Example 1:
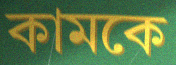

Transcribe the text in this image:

কামকে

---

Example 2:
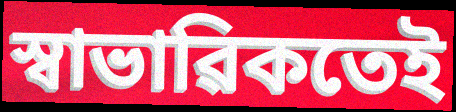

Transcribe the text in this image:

স্বাভাৱিকতেই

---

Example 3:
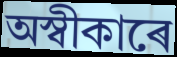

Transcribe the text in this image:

অস্বীকাৰে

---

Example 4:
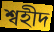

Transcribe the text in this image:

শ্বহীদ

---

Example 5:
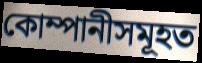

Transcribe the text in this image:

কোম্পানীসমূহত